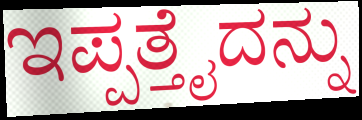
ಇಪ್ಪತ್ತೈದನ್ನು